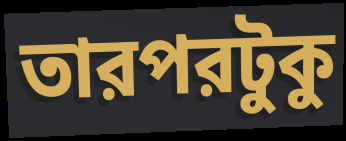
তারপরটুকু